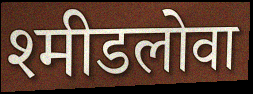
श्मीडलोवा